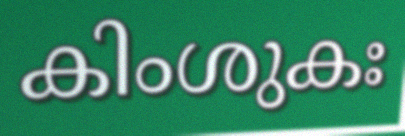
കിംശുകഃ